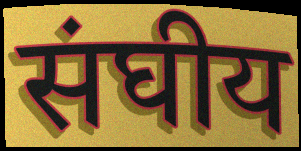
संघीय